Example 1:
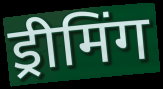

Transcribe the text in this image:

ड्रीमिंग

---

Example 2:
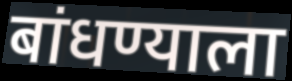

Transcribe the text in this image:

बांधण्याला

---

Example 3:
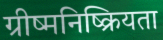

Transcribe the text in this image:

ग्रीष्मनिष्क्रियता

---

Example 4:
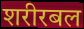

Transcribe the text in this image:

शरीरबल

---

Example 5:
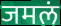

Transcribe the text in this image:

जमलं